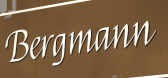
Bergmann